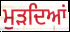
ਮੁੜਦਿਆਂ